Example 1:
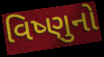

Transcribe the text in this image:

વિષ્ણુનો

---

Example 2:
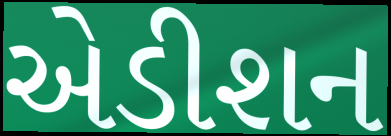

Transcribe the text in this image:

એડીશન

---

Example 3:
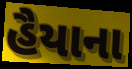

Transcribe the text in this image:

હૈયાના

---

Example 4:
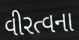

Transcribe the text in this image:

વીરત્વના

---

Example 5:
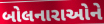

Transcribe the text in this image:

બોલનારાઓને